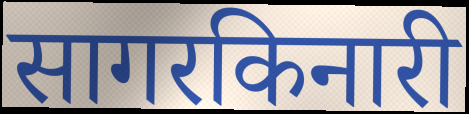
सागरकिनारी